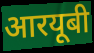
आरयूबी